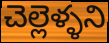
చెల్లెళ్ళని